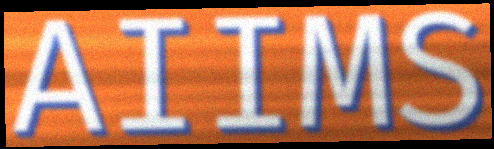
AIIMS